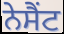
ਨੇਸੈਂਟ